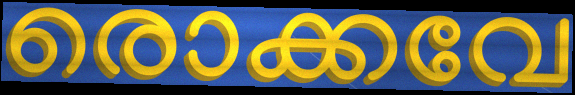
രൊക്കവേ